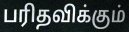
பரிதவிக்கும்